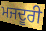
ਮਜਦੂਰੀ